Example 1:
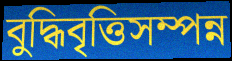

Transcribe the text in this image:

বুদ্ধিবৃত্তিসম্পন্ন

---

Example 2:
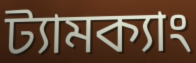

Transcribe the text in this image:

ট্যামক্যাং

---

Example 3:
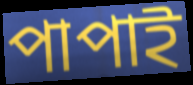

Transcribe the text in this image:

পাপাই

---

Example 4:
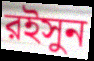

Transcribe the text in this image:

রইসুন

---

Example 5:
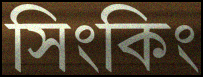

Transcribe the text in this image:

সিংকিং